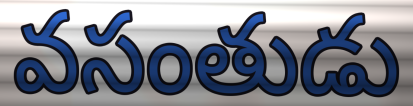
వసంతుడు